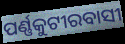
ପର୍ଣ୍ଣକୁଟୀରବାସୀ